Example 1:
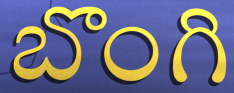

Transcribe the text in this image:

బొంగి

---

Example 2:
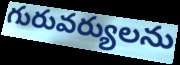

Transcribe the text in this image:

గురువర్యులను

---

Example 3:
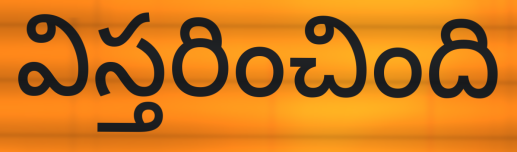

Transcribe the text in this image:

విస్తరించింది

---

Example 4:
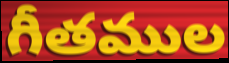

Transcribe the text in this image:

గీతముల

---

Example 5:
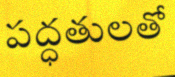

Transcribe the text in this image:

పద్ధతులతో